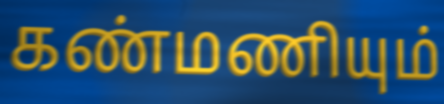
கண்மணியும்